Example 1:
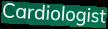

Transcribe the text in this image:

Cardiologist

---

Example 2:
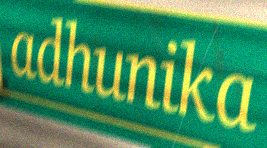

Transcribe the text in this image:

adhunika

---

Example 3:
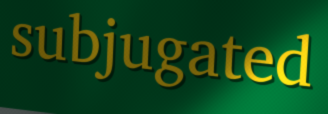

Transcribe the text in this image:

subjugated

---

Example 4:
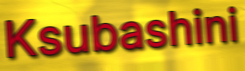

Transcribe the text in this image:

Ksubashini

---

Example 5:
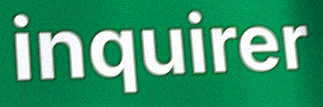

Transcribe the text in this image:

inquirer